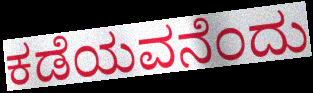
ಕಡೆಯವನೆಂದು